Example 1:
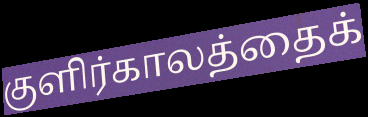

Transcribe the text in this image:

குளிர்காலத்தைக்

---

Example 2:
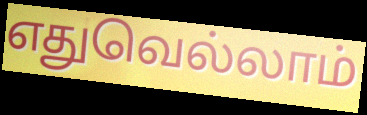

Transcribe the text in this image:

எதுவெல்லாம்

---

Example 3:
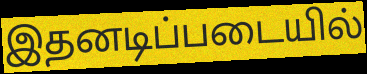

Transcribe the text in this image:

இதனடிப்படையில்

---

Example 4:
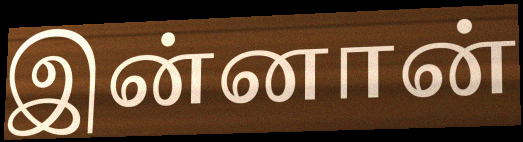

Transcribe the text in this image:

இன்னான்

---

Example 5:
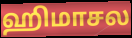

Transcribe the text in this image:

ஹிமாசல